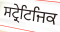
ਸਟ੍ਰੇਟਿਜਿਕ